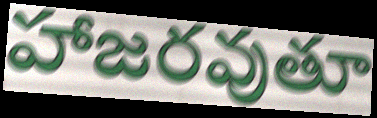
హాజరవుతూ